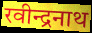
रवीन्‍द्रनाथ